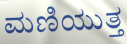
ಮಣಿಯುತ್ತ